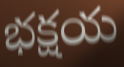
భక్షయ